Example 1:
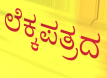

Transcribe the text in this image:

ಲೆಕ್ಕಪತ್ರದ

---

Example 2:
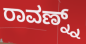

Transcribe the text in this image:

ರಾವಣ್ನ್ನ್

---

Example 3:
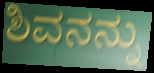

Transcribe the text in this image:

ಶಿವನನ್ನು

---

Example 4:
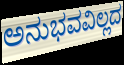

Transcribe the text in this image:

ಅನುಭವವಿಲ್ಲದ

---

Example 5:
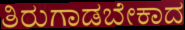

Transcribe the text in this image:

ತಿರುಗಾಡಬೇಕಾದ